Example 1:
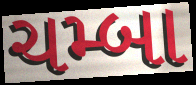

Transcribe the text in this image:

ચમ્બા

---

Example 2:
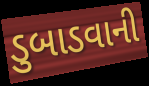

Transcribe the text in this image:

ડુબાડવાની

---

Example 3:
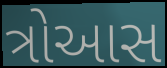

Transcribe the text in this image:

ત્રોઆસ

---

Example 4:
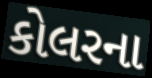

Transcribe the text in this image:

કોલરના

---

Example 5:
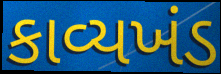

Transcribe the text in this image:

કાવ્યખંડ